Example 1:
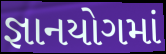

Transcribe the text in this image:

જ્ઞાનયોગમાં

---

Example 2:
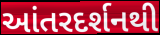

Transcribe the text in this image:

આંતરદર્શનથી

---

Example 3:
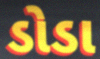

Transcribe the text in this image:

ડોડા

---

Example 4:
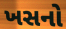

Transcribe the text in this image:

ખસનો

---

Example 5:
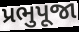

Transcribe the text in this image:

પ્રભુપૂજા